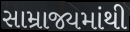
સામ્રાજ્યમાંથી